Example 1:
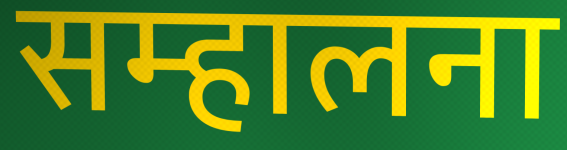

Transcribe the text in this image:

सम्हालना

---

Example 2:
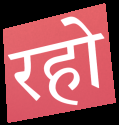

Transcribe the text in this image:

रहो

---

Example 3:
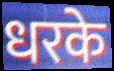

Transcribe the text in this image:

धरके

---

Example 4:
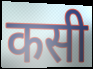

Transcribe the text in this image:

कसी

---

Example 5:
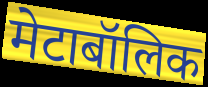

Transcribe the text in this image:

मेटाबॉलिक